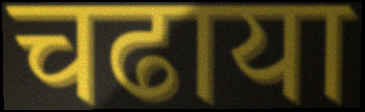
चढाया